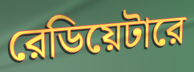
রেডিয়েটারে